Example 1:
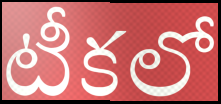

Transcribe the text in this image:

టీకలో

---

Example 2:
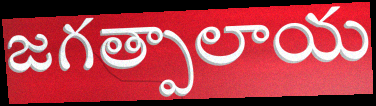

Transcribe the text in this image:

జగత్పాలాయ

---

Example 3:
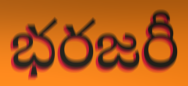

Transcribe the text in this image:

భరజరీ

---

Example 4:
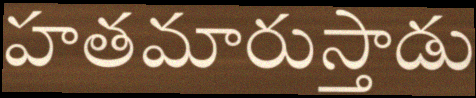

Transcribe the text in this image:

హతమారుస్తాడు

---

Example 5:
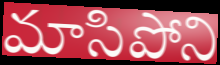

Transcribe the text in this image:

మాసిపోని